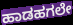
ಹಾಡಹಗಲೇ